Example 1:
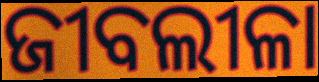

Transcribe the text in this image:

ଜୀବଲୀଳା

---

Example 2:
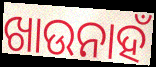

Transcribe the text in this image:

ଖାଉନାହଁ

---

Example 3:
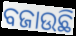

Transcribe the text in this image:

ବଜାଉଛି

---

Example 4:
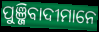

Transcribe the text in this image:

ପୁଞ୍ଜିବାଦୀମାନେ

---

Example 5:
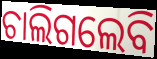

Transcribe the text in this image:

ଚାଲିଗଲେବି